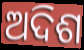
ଅଦିଶ